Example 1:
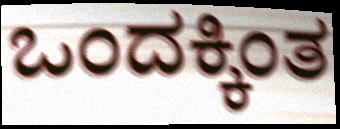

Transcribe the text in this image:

ಒಂದಕ್ಕಿಂತ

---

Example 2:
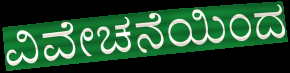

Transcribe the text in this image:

ವಿವೇಚನೆಯಿಂದ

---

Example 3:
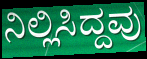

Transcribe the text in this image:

ನಿಲ್ಲಿಸಿದ್ದವು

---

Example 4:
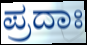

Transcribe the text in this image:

ಪ್ರದಾಃ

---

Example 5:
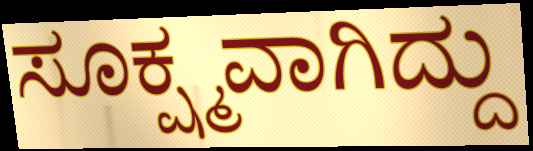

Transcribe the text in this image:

ಸೂಕ್ಷ್ಮವಾಗಿದ್ದು